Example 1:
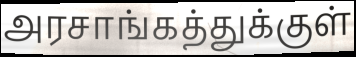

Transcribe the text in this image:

அரசாங்கத்துக்குள்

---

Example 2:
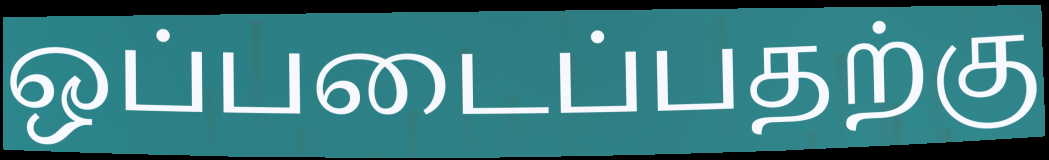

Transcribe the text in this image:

ஒப்படைப்பதற்கு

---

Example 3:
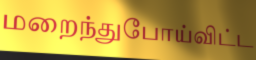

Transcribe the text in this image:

மறைந்துபோய்விட்ட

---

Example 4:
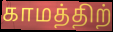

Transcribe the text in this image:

காமத்திற்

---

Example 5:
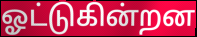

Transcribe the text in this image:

ஓட்டுகின்றன